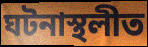
ঘটনাস্থলীত